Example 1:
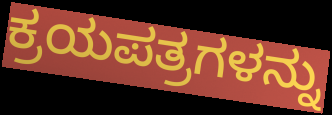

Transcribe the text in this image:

ಕ್ರಯಪತ್ರಗಳನ್ನು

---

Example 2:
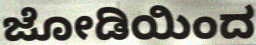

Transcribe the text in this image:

ಜೋಡಿಯಿಂದ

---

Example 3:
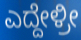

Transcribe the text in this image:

ಎದ್ದೇಳ್ರೀ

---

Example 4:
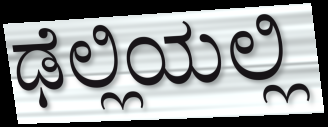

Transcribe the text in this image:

ಢೆಲ್ಲಿಯಲ್ಲಿ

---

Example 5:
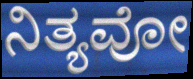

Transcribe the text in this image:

ನಿತ್ಯವೋ